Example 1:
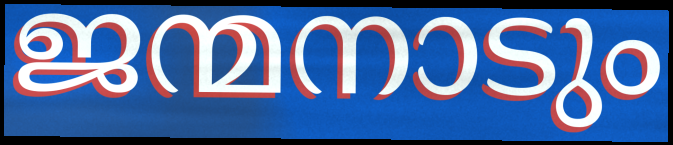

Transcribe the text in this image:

ജന്മനാടും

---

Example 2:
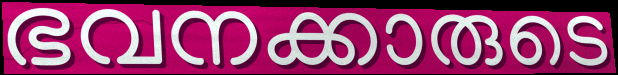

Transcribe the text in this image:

ഭവനക്കാരുടെ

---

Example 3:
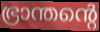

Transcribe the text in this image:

ഭ്രാന്തന്റെ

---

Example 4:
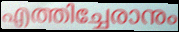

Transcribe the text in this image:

എത്തിച്ചേരാനും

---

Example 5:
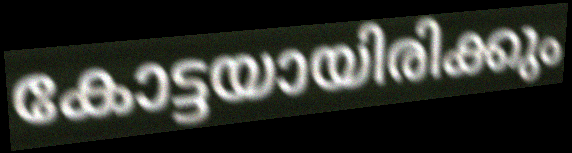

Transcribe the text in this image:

കോട്ടയായിരിക്കും